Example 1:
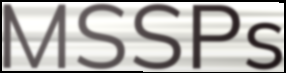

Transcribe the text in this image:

MSSPs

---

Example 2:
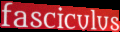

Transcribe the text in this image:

fasciculus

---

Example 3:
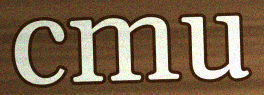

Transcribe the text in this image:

cmu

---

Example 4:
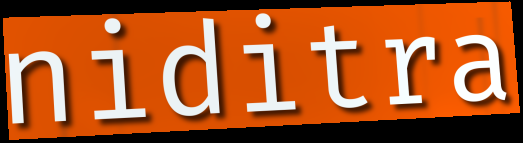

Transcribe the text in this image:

niditra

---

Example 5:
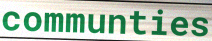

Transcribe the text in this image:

communties